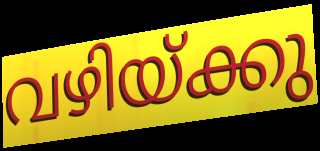
വഴിയ്ക്കു